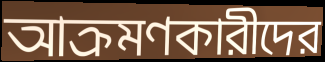
আক্রমণকারীদের